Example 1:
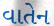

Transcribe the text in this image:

વાતેન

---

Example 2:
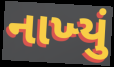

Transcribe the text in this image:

નાખ્‍યું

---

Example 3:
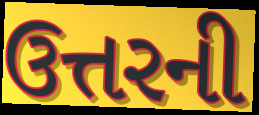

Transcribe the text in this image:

ઉત્તરની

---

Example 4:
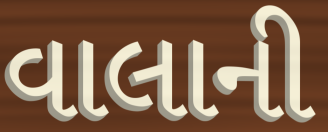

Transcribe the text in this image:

વાલાની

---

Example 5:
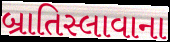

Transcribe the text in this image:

બ્રાતિસ્લાવાના